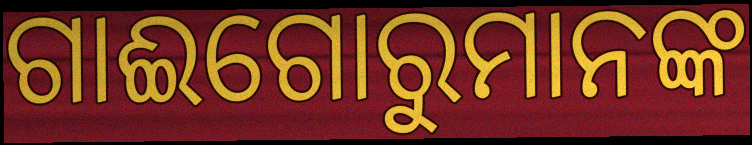
ଗାଈଗୋରୁମାନଙ୍କ